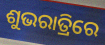
ଶୁଭରାତ୍ରିରେ